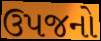
ઉપજનો